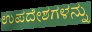
ಉಪದೇಶಗಳನ್ನು